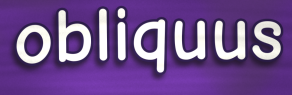
obliquus